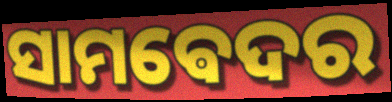
ସାମଵେଦର